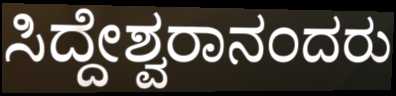
ಸಿದ್ದೇಶ್ವರಾನಂದರು